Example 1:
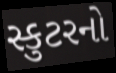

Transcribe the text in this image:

સ્કુટરનો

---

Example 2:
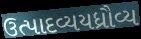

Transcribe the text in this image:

ઉત્પાદવ્યયધ્રૌવ્ય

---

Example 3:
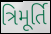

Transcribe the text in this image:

ત્રિમૂર્તિ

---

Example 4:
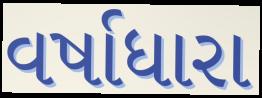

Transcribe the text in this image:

વર્ષાધારા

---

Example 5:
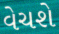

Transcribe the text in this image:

વેચશે